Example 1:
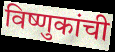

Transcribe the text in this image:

विष्णुकांची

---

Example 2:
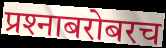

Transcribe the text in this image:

प्रश्‍नाबरोबरच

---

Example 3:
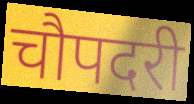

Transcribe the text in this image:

चौपदरी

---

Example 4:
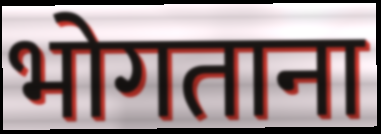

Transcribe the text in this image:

भोगताना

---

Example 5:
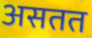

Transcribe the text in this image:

असतत